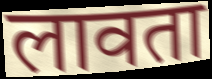
लावता